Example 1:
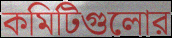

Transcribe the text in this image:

কমিটিগুলোর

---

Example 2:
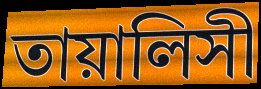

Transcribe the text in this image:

তায়ালিসী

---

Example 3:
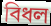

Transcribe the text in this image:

বিধল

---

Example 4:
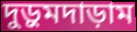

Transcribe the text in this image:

দুড়ুমদাড়াম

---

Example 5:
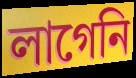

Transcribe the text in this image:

লাগেনি